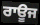
ਰਾਊਜ